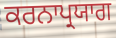
ਕਰਨਾਪ੍ਰਯਾਗ